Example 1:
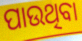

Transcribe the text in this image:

ପାଉଥିବା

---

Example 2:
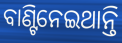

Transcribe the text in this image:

ବାଣ୍ଟିନେଇଥାନ୍ତି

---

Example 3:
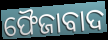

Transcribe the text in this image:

ଫୈଜାବାଦ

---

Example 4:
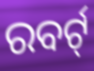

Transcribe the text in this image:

ରବର୍ଟ୍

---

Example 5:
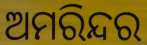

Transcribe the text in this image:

ଅମରିନ୍ଦର